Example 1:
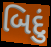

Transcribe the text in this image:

બિદું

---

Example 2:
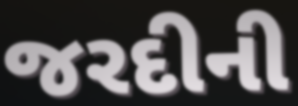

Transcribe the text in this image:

જરદીની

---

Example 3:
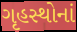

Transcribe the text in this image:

ગૃહસ્થોનાં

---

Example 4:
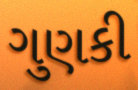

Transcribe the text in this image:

ગુણકી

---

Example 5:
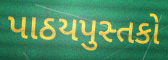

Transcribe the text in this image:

પાઠયપુસ્તકો